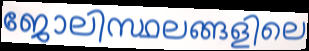
ജോലിസ്ഥലങ്ങളിലെ